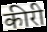
कीरी